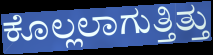
ಕೊಲ್ಲಲಾಗುತ್ತಿತ್ತು